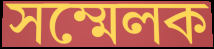
সম্মেলক